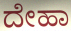
ದೇಹಾ